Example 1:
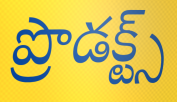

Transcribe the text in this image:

ప్రొడక్ట్స్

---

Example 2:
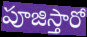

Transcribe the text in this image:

పూజిస్తారో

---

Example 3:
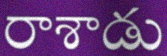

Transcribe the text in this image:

రాశాడు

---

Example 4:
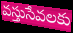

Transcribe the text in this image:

వస్తుసేవలకు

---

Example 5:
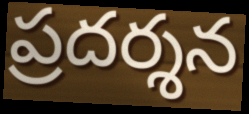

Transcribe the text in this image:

ప్రదర్శన